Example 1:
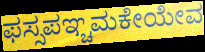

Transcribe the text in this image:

ಫಸ್ಸಪಞ್ಚಮಕೇಯೇವ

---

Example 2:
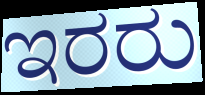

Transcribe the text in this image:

ಇರರು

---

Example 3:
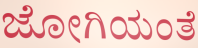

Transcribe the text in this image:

ಜೋಗಿಯಂತೆ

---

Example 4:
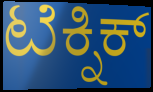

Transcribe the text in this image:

ಟೆಕ್ನಿಕ್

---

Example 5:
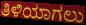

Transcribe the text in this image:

ತಿಳಿಯಾಗಲು